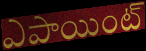
ఎపాయింట్